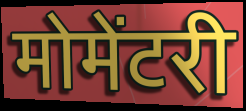
मोमेंटरी